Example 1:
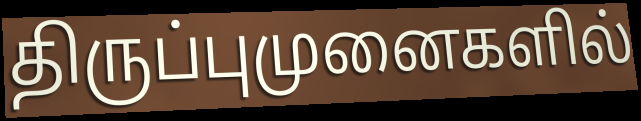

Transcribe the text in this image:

திருப்புமுனைகளில்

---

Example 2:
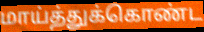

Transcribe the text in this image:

மாய்த்துக்கொண்ட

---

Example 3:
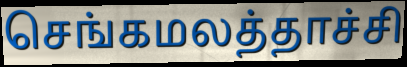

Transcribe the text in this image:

செங்கமலத்தாச்சி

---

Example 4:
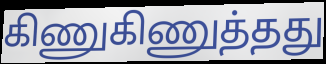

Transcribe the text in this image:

கிணுகிணுத்தது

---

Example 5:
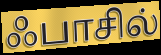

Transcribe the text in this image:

ஃபாசில்